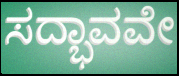
ಸದ್ಭಾವವೇ